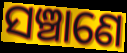
ସଞ୍ଚାଣେ